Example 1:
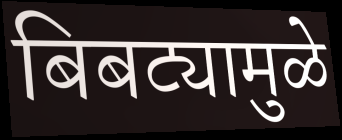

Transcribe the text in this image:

बिबट्यामुळे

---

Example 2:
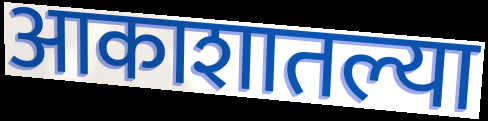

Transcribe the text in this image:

आकाशातल्या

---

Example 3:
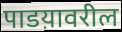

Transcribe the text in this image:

पाडय़ावरील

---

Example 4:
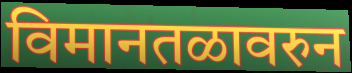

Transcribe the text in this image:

विमानतळावरुन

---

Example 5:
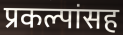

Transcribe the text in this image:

प्रकल्पांसह